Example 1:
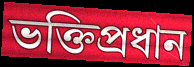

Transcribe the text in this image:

ভক্তিপ্রধান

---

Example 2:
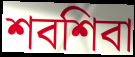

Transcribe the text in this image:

শবশিবা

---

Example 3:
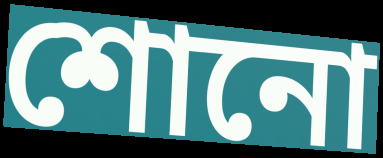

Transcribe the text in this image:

শোনো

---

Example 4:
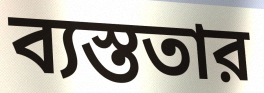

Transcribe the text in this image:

ব্যস্ততার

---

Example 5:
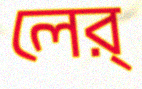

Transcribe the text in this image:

লের্